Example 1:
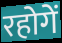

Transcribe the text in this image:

रहोगें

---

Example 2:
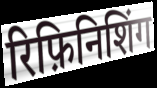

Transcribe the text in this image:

रिफ़िनिशिंग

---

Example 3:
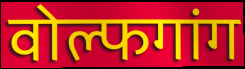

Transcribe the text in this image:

वोल्फगांग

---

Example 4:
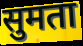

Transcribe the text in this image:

सुमता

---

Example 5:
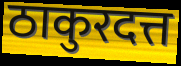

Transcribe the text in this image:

ठाकुरदत्त